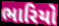
ભારિયો